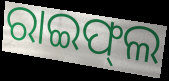
ରାଇଫ୍‌ଲ